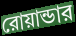
রোয়ান্ডার